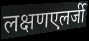
लक्षणएलर्जी